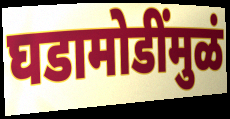
घडामोडींमुळं